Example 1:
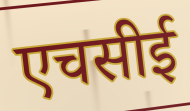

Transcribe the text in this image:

एचसीई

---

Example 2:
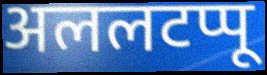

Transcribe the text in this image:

अललटप्पू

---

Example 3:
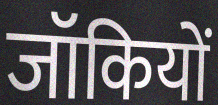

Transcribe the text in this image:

जॉकियों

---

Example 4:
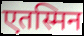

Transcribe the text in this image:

एतस्मिन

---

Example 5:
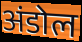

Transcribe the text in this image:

अंडोल